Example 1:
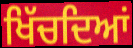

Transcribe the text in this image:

ਖਿੱਚਦਿਆਂ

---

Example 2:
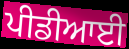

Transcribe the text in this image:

ਪੀਡੀਆਈ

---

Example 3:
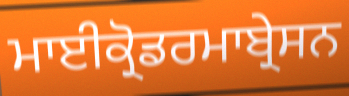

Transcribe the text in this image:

ਮਾਈਕ੍ਰੋਡਰਮਾਬ੍ਰੇਸਨ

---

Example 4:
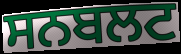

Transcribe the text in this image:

ਸਨਬਲਟ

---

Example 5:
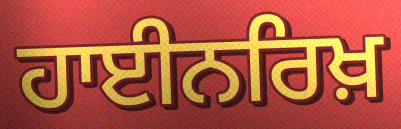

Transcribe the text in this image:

ਹਾਈਨਰਿਖ਼